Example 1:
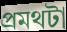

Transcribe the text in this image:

প্রমথটা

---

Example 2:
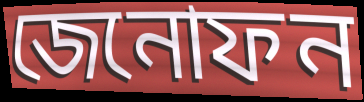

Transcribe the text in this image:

জেনোফন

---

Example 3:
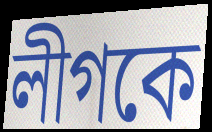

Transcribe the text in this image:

লীগকে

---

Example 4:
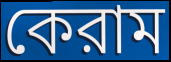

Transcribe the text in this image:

কেরাম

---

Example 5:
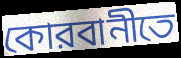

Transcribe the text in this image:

কোরবানীতে